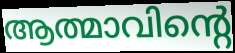
ആത്മാവിന്റെ